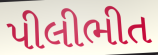
પીલીભીત